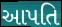
આપતિ